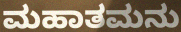
ಮಹಾತಮನು